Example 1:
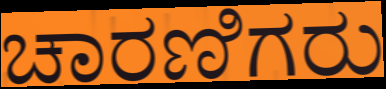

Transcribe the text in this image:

ಚಾರಣಿಗರು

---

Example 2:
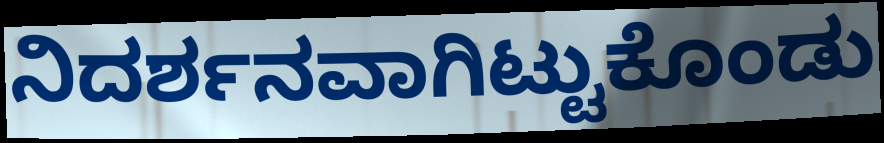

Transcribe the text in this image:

ನಿದರ್ಶನವಾಗಿಟ್ಟುಕೊಂಡು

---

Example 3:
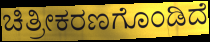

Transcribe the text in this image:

ಚಿತ್ರೀಕರಣಗೊಂಡಿದೆ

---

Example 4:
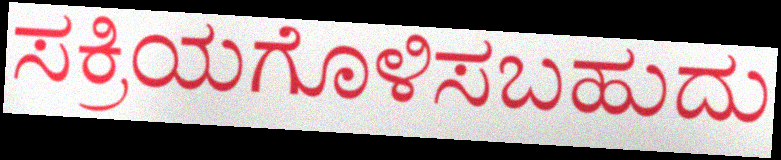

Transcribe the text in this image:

ಸಕ್ರಿಯಗೊಳಿಸಬಹುದು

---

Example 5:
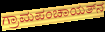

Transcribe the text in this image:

ಗ್ರಾಮಪಂಚಾಯತ್‌ನ